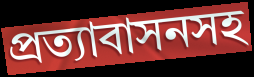
প্রত্যাবাসনসহ